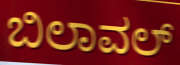
ಬಿಲಾವಲ್